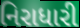
નિરાધારી